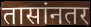
तासांनतर